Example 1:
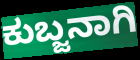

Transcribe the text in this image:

ಕುಬ್ಜನಾಗಿ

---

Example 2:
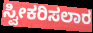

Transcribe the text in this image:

ಸ್ವೀಕರಿಸಲಾರ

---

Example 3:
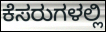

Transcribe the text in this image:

ಕೆಸರುಗಳಲ್ಲಿ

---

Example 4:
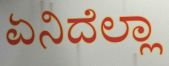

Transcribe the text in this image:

ಏನಿದೆಲ್ಲಾ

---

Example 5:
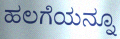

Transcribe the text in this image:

ಹಲಗೆಯನ್ನೂ